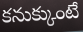
కనుక్కుంటే